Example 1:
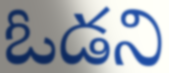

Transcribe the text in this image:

ఓడని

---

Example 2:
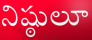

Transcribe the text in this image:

నిష్ఠులూ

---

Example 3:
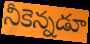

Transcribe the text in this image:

నీకెన్నడూ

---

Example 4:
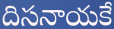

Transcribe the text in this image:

దిసనాయకే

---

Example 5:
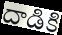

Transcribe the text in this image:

దాడికి